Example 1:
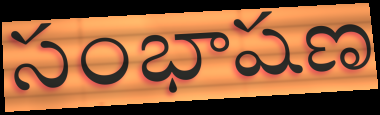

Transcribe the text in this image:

సంభాషణ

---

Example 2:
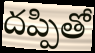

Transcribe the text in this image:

దప్పితో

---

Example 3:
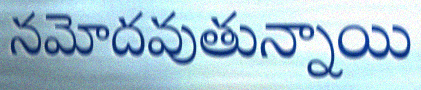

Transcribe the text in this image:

నమోదవుతున్నాయి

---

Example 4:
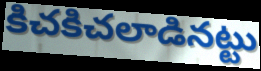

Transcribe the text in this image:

కిచకిచలాడినట్టు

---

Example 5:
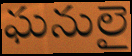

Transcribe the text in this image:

ఘనులై